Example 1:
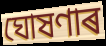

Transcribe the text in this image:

ঘোষণাৰ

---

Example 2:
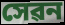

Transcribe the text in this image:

সেৱন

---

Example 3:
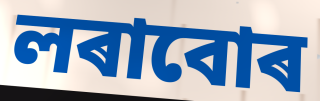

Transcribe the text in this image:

লৰাবোৰ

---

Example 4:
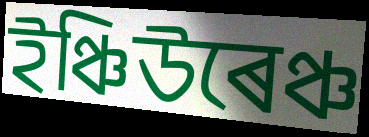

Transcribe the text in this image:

ইঞ্চিউৰেঞ্চ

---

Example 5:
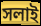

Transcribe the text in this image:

সলাই